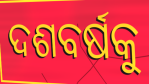
ଦଶବର୍ଷକୁ